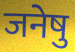
जनेषु